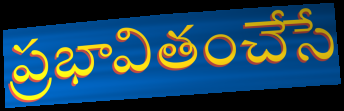
ప్రభావితంచేసే